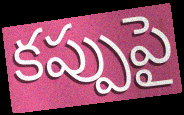
కప్పుపై